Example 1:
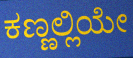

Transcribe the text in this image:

ಕಣ್ಣಲ್ಲಿಯೇ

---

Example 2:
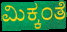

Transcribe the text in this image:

ಮಿಕ್ಕಂತೆ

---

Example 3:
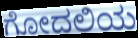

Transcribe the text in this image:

ಗೋದಲಿಯ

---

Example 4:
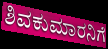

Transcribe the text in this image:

ಶಿವಕುಮಾರನಿಗೆ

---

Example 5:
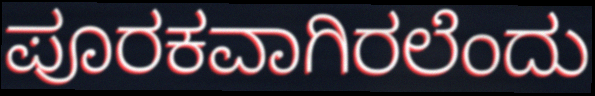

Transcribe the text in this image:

ಪೂರಕವಾಗಿರಲೆಂದು